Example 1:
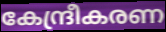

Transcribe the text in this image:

കേന്ദ്രീകരണ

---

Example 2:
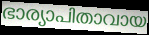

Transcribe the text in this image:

ഭാര്യാപിതാവായ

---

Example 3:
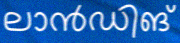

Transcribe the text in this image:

ലാൻഡിങ്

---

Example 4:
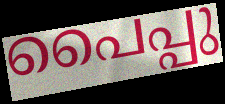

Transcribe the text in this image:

പൈപ്പു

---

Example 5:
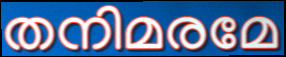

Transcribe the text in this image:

തനിമരമേ